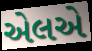
એલએ